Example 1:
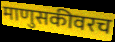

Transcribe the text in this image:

माणुसकीवरच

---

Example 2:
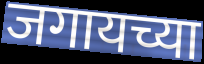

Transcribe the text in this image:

जगायच्या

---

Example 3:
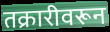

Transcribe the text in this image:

तक्रारीवरून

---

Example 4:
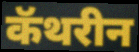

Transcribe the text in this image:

कॅथरीन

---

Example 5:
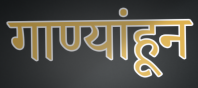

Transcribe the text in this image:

गाण्यांहून